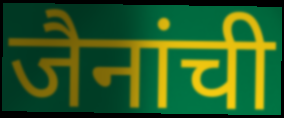
जैनांची